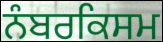
ਨੰਬਰਕਿਸਮ